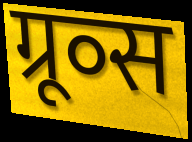
ग्रूव्स